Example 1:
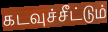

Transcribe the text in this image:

கடவுச்சீட்டும்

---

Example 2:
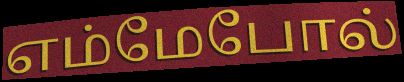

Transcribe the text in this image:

எம்மேபோல்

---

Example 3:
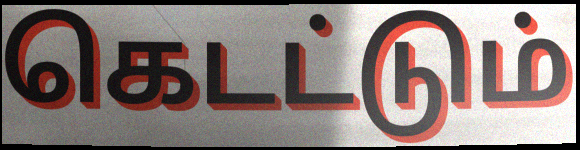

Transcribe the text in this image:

கெடட்டும்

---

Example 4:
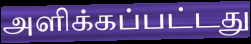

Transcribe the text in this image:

அளிக்கப்பட்டது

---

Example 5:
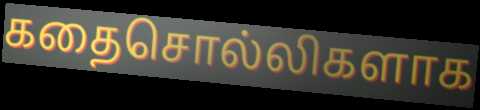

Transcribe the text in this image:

கதைசொல்லிகளாக